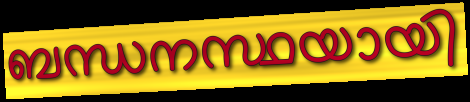
ബന്ധനസ്ഥയായി